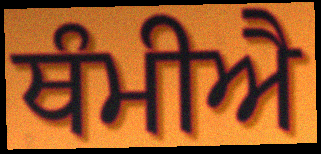
ਥੰਮੀਐ